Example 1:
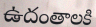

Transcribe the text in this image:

ఉదంతాలకి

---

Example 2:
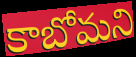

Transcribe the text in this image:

కాబోమని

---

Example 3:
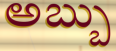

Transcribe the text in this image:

అబ్బు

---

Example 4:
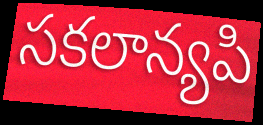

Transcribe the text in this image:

సకలాన్యపి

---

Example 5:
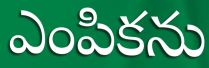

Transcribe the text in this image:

ఎంపికను